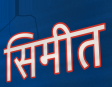
सिमीत